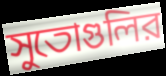
সুতোগুলির